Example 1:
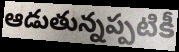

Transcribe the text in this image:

ఆడుతున్నప్పటికీ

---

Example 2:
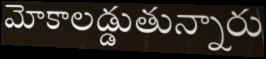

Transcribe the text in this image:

మోకాలడ్డుతున్నారు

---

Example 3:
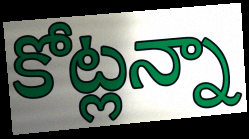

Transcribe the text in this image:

కోట్లన్నా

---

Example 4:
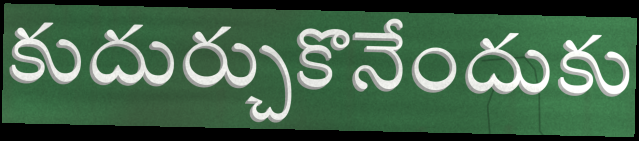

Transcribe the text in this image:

కుదుర్చుకొనేందుకు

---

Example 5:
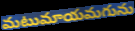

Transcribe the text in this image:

మటుమాయమగును